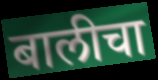
बालीचा